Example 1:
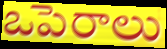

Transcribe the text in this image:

ఒపెరాలు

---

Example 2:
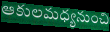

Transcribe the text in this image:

ఆకులమధ్యనుంచి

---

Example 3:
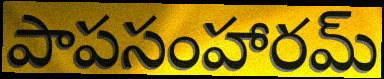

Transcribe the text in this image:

పాపసంహారమ్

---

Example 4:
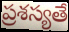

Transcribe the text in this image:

ప్రశస్యతే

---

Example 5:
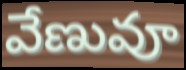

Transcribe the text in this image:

వేణువూ